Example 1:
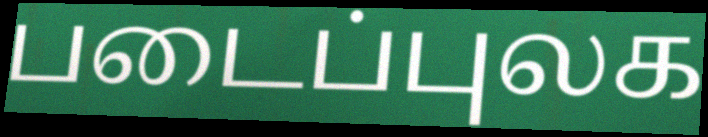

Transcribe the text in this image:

படைப்புலக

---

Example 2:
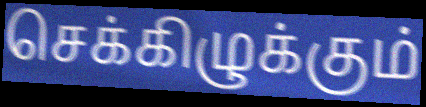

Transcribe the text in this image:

செக்கிழுக்கும்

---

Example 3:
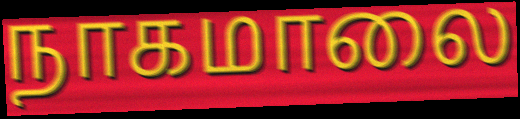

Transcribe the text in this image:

நாகமாலை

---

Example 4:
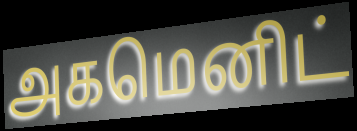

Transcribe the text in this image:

அகமெனிட்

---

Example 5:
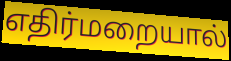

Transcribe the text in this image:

எதிர்மறையால்